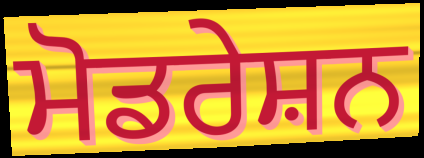
ਮੋਡਰੇਸ਼ਨ